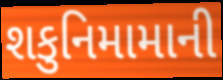
શકુનિમામાની